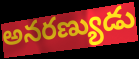
అనరణ్యుడు